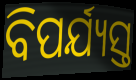
ବିପର୍ଯ୍ୟସ୍ତ